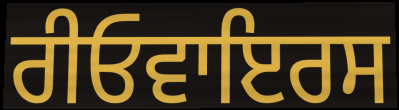
ਰੀਓਵਾਇਰਸ